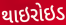
થાઇરોઇડ